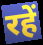
रहें